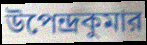
উপেন্দ্রকুমার